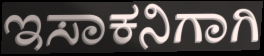
ಇಸಾಕನಿಗಾಗಿ